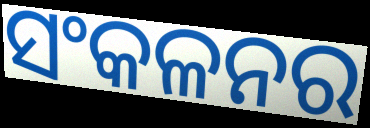
ସଂକଳନର